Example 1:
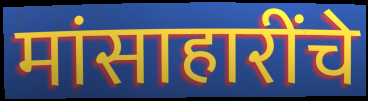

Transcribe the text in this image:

मांसाहारींचे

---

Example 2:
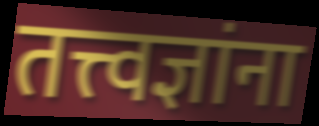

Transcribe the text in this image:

तत्त्वज्ञांना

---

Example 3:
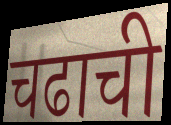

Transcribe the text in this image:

चढाची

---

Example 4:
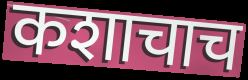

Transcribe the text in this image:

कशाचाच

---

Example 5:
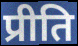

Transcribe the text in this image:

प्रीति